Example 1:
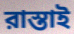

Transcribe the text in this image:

রাস্তাই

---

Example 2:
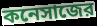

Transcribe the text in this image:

কনেসাজের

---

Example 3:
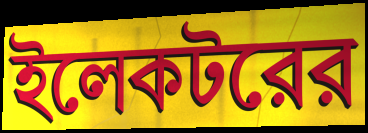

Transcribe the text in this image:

ইলেকটরের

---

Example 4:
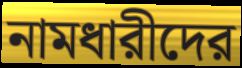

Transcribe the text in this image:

নামধারীদের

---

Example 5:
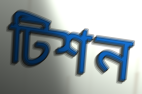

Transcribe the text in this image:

টিশন